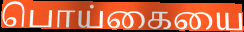
பொய்கையை